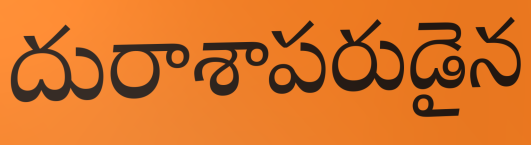
దురాశాపరుడైన